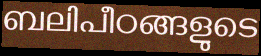
ബലിപീഠങ്ങളുടെ